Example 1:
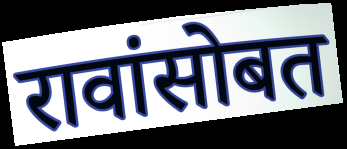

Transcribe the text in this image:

रावांसोबत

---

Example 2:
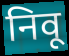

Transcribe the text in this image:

निवू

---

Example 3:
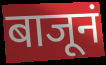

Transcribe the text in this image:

बाजूनं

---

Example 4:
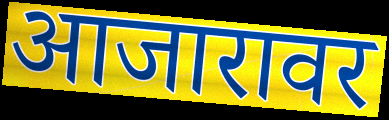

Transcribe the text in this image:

आजारावर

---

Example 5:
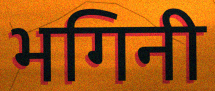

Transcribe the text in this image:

भगिनी